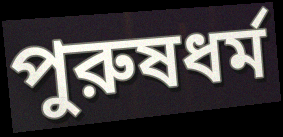
পুরুষধর্ম